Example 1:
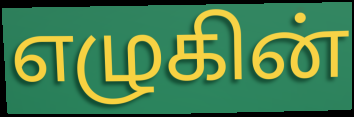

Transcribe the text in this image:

எழுகின்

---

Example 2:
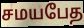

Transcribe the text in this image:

சமயபேத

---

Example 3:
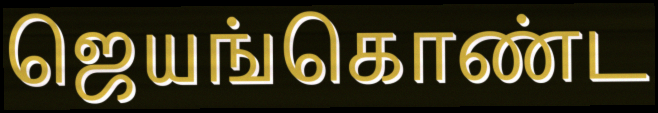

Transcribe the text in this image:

ஜெயங்கொண்ட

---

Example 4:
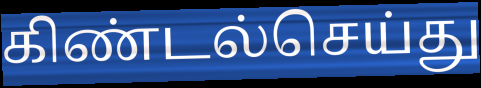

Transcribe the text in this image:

கிண்டல்செய்து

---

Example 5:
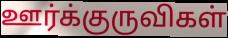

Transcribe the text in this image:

ஊர்க்குருவிகள்